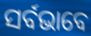
ସର୍ବଭାବେ